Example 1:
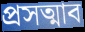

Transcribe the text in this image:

প্রসত্মাব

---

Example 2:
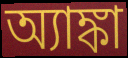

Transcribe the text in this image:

অ্যাঙ্কা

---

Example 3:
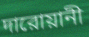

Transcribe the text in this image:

দারোয়ানী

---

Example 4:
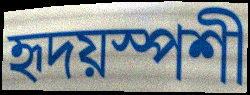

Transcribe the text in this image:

হৃদয়স্পশী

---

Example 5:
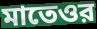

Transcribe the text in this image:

মাতেওর